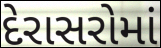
દેરાસરોમાં